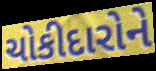
ચોકીદારોને